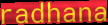
radhana